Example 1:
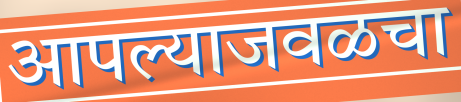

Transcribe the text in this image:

आपल्याजवळचा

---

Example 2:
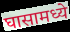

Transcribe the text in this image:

घासामध्ये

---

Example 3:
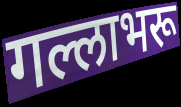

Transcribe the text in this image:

गल्लाभरू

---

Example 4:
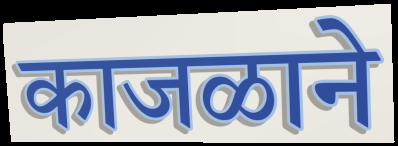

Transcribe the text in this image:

काजळाने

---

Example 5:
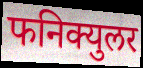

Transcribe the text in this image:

फनिक्युलर